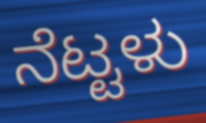
ನೆಟ್ಟಳು